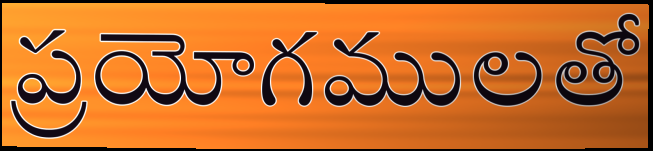
ప్రయోగములతో